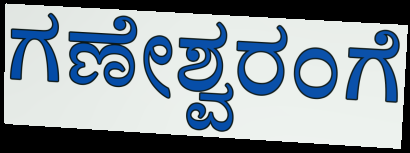
ಗಣೇಶ್ವರಂಗೆ